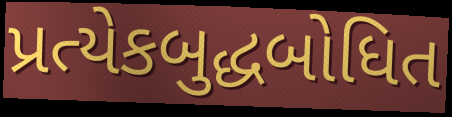
પ્રત્યેકબુદ્ધબોધિત